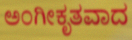
ಅಂಗೀಕೃತವಾದ